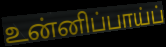
உன்னிப்பாய்ப்